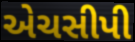
એચસીપી